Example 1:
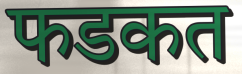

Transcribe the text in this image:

फडकत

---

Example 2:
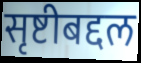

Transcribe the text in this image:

सृष्टीबद्दल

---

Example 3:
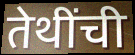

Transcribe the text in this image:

तेथींची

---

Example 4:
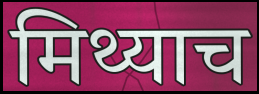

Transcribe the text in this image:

मिथ्याच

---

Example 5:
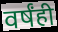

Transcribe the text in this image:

वर्षंही